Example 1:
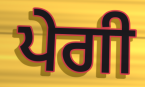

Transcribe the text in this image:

ਪੇਗੀ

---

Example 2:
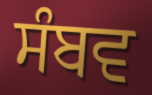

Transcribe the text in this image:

ਸੰਬਵ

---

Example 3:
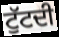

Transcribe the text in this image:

ਟੁੱਟਦੀ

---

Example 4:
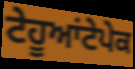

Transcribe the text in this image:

ਟੇਹੂਆਂਟੇਪੇਕ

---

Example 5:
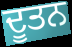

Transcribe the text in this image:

ਦੂਤਨ